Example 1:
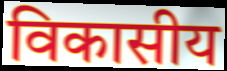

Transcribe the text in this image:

विकासीय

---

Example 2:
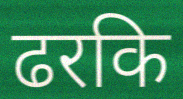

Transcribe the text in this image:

ढरकि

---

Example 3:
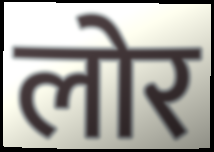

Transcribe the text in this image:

लोर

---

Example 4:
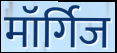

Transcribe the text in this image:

मॉर्गिज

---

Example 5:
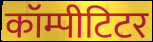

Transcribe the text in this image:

कॉम्पीटिटर